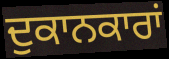
ਦੁਕਾਨਕਾਰਾਂ